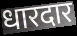
धारदार